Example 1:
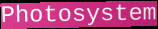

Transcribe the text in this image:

Photosystem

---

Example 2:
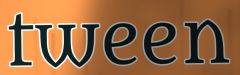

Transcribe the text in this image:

tween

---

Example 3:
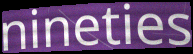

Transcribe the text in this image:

nineties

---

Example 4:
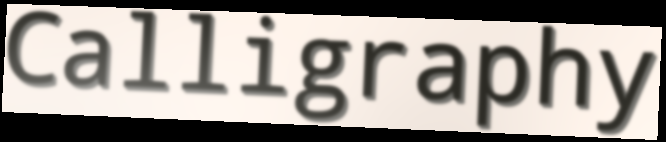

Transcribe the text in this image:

Calligraphy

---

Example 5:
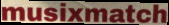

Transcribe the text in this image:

musixmatch